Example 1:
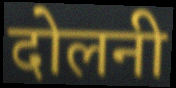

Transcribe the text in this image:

दोलनी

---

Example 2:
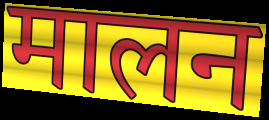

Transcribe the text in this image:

मालन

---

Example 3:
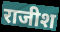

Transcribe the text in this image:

राजीश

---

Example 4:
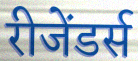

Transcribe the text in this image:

रीजेंडर्स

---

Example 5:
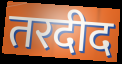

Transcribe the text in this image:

तरदीद